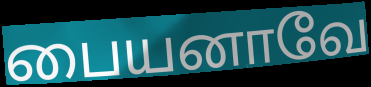
பையனாவே